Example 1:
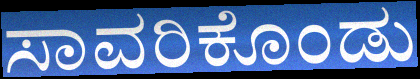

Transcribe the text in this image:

ಸಾವರಿಕೊಂಡು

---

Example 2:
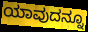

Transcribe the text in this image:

ಯಾವುದನ್ನೂ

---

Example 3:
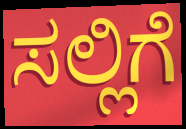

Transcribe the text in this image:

ಸಲ್ಲಿಗೆ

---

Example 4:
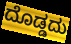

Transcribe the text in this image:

ದೊಡ್ಡದು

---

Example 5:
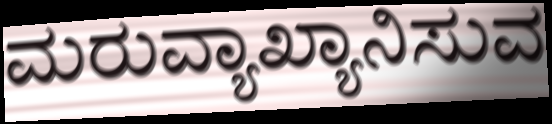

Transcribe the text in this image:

ಮರುವ್ಯಾಖ್ಯಾನಿಸುವ